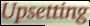
Upsetting